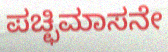
ಪಚ್ಛಿಮಾಸನೇ